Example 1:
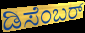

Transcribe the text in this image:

ಡಿಸೆಂಬರ್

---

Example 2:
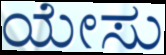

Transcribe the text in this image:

ಯೇಸು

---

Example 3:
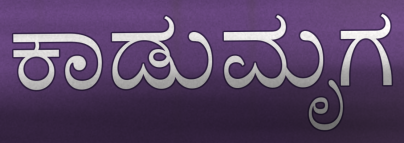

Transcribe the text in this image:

ಕಾಡುಮೃಗ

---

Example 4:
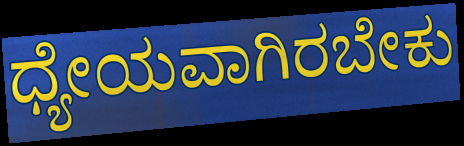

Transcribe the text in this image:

ಧ್ಯೇಯವಾಗಿರಬೇಕು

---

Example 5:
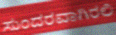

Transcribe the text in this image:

ಸುಂದರವಾಗಿರಲಿ